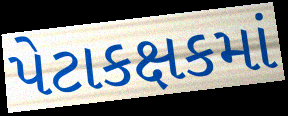
પેટાકક્ષકમાં